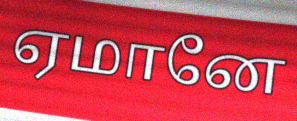
ஏமானே